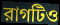
রাগটিও